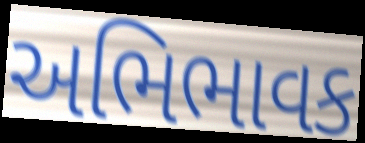
અભિભાવક